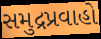
સમુદ્રપ્રવાહો